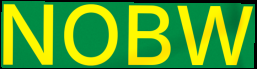
NOBW